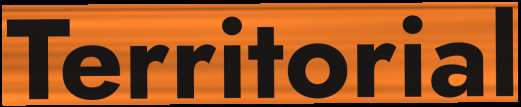
Territorial